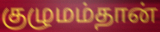
குழுமம்தான்